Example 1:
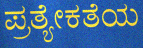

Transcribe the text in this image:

ಪ್ರತ್ಯೇಕತೆಯ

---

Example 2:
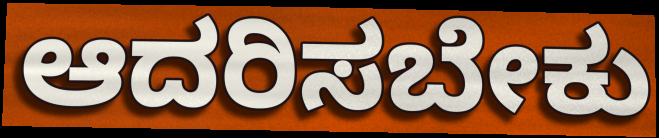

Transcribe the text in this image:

ಆದರಿಸಬೇಕು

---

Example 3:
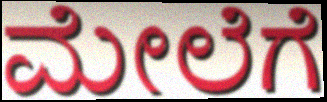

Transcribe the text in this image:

ಮೇಲೆಗೆ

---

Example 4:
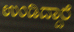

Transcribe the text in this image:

ಉಂಡಿದ್ದಾರೆ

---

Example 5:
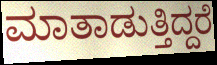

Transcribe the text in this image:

ಮಾತಾಡುತ್ತಿದ್ದರೆ